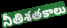
నీతిశతకాలు